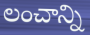
లంచాన్ని